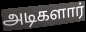
அடிகளார்